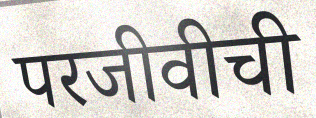
परजीवीची